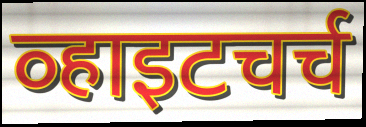
व्हाइटचर्च